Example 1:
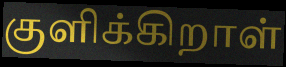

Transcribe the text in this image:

குளிக்கிறாள்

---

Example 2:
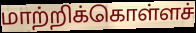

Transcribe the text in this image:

மாற்றிக்கொள்ளச்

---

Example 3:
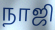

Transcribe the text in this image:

நாஜி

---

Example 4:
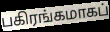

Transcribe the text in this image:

பகிரங்கமாகப்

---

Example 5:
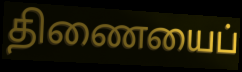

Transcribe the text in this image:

திணையைப்